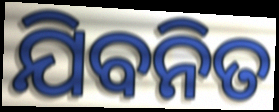
ଯିବନିତ